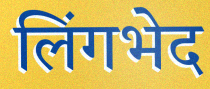
लिंगभेद